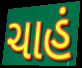
ચાહં